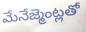
మేనేజ్మెంట్లతో